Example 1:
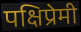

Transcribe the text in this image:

पक्षिप्रेमी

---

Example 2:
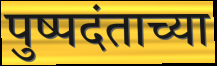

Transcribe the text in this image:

पुष्पदंताच्या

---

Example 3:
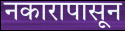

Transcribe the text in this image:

नकारापासून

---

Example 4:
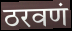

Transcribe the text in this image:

ठरवणं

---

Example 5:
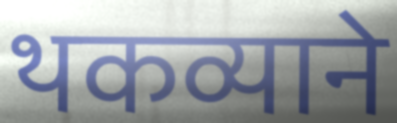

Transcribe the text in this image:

थकव्याने